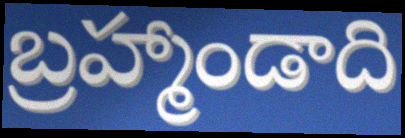
బ్రహ్మాండాది